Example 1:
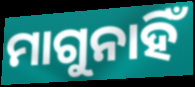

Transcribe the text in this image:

ମାଗୁନାହିଁ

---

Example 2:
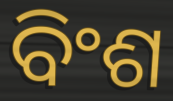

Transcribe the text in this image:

ବିଂଶ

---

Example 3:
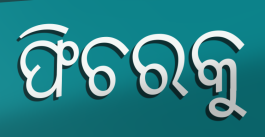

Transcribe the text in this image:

ଫିଚରକୁ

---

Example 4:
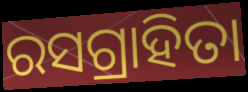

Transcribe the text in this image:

ରସଗ୍ରାହିତା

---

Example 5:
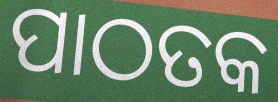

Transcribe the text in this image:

ପାଠତକ